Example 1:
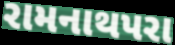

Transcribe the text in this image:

રામનાથપરા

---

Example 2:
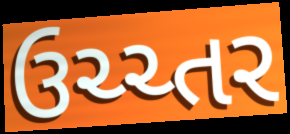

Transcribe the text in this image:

ઉચ્ચ્તર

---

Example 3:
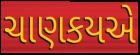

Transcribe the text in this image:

ચાણકયએ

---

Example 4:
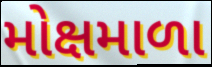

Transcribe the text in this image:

મોક્ષમાળા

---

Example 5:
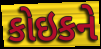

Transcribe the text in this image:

કોઇકને